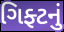
ગિફ્ટનું